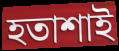
হতাশাই